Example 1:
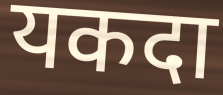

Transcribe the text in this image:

यकदा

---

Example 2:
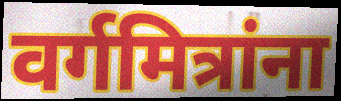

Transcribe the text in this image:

वर्गमित्रांना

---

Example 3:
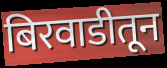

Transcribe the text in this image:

बिरवाडीतून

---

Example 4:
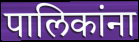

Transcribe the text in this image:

पालिकांना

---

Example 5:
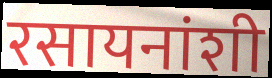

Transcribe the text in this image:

रसायनांशी